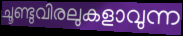
ചൂണ്ടുവിരലുകളാവുന്ന